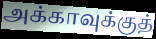
அக்காவுக்குத்